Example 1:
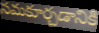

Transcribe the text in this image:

సమకూర్చడానికి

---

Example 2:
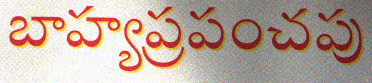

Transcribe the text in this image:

బాహ్యప్రపంచపు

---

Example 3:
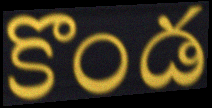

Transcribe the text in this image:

కొండ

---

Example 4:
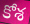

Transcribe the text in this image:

కోశ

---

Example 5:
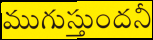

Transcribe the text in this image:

ముగుస్తుందనీ